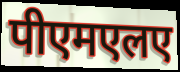
पीएमएलए